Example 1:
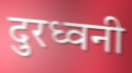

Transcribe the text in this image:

दुरध्वनी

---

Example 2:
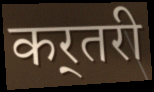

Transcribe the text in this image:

कर्तरी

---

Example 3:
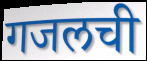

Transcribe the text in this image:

गजलची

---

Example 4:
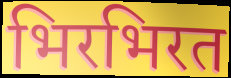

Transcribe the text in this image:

भिरभिरत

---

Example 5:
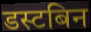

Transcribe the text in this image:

डस्टबिन